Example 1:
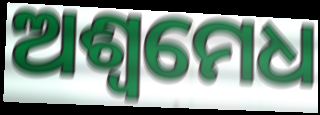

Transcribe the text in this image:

ଅଶ୍ୱମେଧ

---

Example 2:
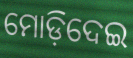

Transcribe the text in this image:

ମୋଡ଼ିଦେଇ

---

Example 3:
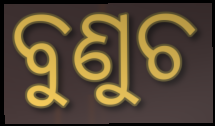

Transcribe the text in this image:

ବୁଣୁଚ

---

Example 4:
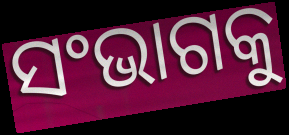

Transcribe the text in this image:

ସଂଭାଗକୁ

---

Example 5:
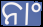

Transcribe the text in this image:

ନାଂ